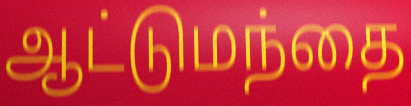
ஆட்டுமந்தை